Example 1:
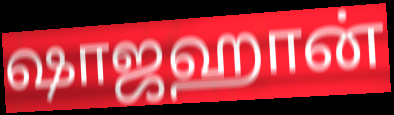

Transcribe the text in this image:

ஷாஜஹான்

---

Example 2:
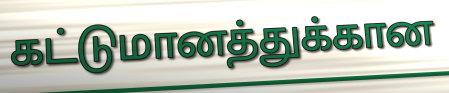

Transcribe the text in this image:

கட்டுமானத்துக்கான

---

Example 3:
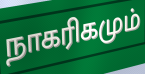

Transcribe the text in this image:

நாகரிகமும்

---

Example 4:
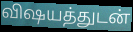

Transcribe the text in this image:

விஷயத்துடன்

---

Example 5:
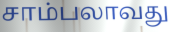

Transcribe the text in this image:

சாம்பலாவது